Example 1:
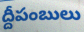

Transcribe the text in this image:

ద్దీపంబులు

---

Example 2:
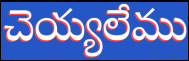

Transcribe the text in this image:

చెయ్యలేము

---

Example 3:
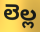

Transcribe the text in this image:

లెల్ల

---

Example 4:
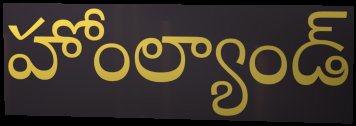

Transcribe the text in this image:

హోంల్యాండ్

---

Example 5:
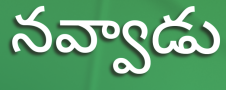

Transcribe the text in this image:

నవ్వాడు